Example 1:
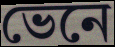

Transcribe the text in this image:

ভেনে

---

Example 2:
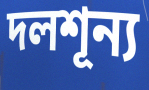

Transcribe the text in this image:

দলশূন্য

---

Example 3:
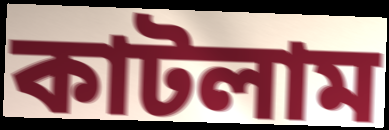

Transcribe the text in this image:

কাটলাম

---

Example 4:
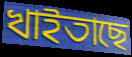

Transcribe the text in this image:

খাইতাছে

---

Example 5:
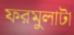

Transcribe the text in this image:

ফরমুলাটা